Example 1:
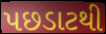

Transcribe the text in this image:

પછડાટથી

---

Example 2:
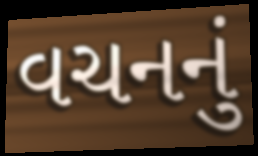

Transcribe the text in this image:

વચનનું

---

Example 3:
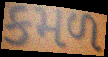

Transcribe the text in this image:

કમળ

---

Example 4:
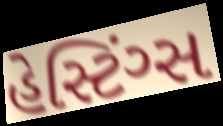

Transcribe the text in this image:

હેસ્ટિંગ્સ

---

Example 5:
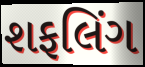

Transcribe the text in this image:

શફલિંગ